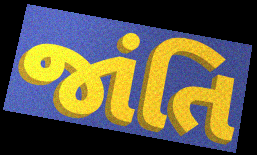
જાંતિ